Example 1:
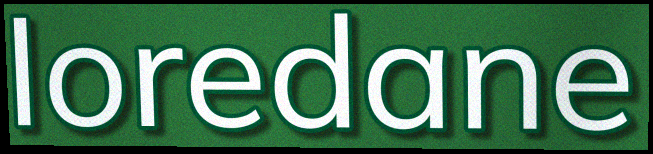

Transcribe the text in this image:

Ioredane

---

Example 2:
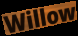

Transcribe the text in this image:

Willow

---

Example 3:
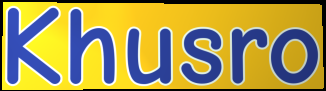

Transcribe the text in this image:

Khusro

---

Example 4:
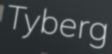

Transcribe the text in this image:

Tyberg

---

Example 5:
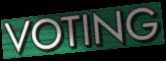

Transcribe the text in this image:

VOTING